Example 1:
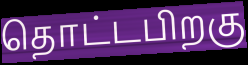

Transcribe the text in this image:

தொட்டபிறகு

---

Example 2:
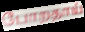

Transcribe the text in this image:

போறதாய்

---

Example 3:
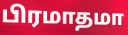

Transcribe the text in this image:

பிரமாதமா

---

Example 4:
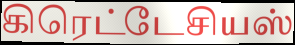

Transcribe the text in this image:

கிரெட்டேசியஸ்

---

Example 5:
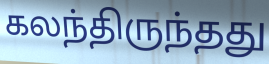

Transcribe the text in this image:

கலந்திருந்தது